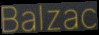
Balzac